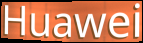
Huawei